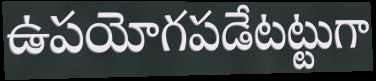
ఉపయోగపడేటట్టుగా